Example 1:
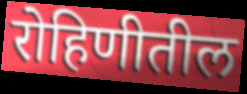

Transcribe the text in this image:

रोहिणीतील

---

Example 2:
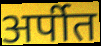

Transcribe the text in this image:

अर्पीत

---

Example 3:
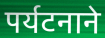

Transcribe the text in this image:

पर्यटनाने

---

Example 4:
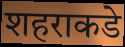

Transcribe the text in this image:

शहराकडे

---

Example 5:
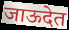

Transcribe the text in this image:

जाऊदेत